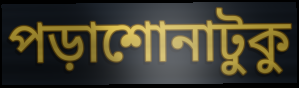
পড়াশোনাটুকু